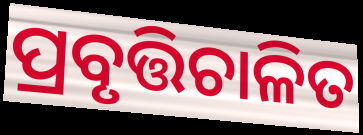
ପ୍ରବୃତ୍ତିଚାଳିତ